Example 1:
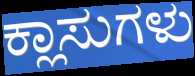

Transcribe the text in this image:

ಕ್ಲಾಸುಗಳು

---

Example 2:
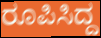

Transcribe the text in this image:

ರೂಪಿಸಿದ್ದ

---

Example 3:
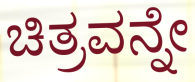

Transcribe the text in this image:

ಚಿತ್ರವನ್ನೇ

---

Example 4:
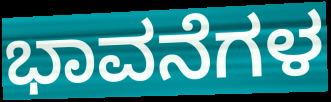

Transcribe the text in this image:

ಭಾವನೆಗಳ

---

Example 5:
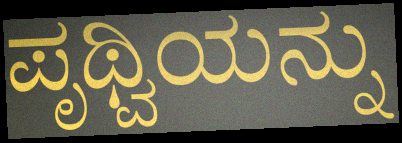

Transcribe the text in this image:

ಪೃಥ್ವಿಯನ್ನು